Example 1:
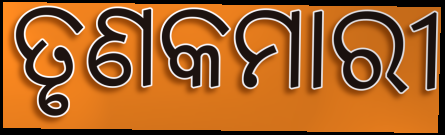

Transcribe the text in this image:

ତୃଣକମାରୀ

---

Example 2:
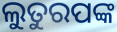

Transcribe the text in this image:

ଲୁତୁରପଙ୍କ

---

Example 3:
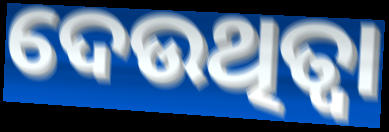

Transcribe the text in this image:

ଦେଉଥିତ୍ବା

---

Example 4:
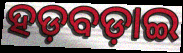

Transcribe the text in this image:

ହଡ଼ବଡ଼ାଇ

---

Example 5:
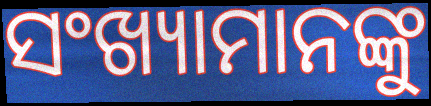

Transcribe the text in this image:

ସଂଖ୍ୟାମାନଙ୍କୁ